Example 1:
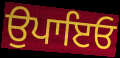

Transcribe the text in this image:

ਉਪਾਇਓ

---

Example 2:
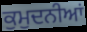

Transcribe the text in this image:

ਕੁਮੁਦਨੀਆਂ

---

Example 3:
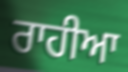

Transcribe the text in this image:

ਰਾਹੀਆ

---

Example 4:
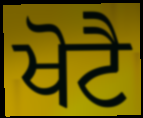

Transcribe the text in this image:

ਖੋਟੈ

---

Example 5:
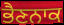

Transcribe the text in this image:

ਭੈਣਨਾਕ